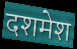
दशमेश